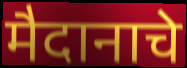
मैदानाचे